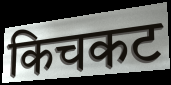
किचकट